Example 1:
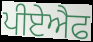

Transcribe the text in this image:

ਪੀਏਐਫ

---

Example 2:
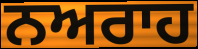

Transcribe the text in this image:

ਨਅਰਾਹ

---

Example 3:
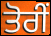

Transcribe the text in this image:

ਤੋਰੀਂ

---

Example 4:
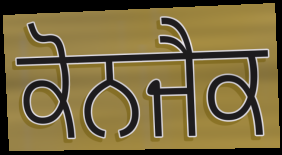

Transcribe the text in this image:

ਕੋਨਜੈਕ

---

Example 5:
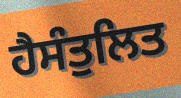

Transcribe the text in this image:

ਹੈਸੰਤੁਲਿਤ